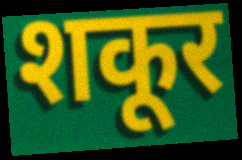
शकूर